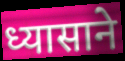
ध्यासाने